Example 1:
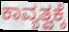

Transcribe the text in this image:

ಕಾವ್ಯತ್ವಕ್ಕೆ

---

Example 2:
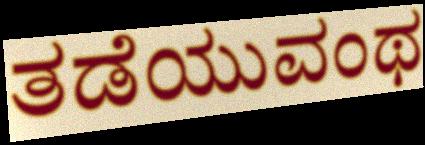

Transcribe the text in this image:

ತಡೆಯುವಂಥ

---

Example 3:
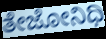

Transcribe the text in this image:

ತೇಜೋನಿಧಿ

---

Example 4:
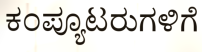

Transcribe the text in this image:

ಕಂಪ್ಯೂಟರುಗಳಿಗೆ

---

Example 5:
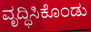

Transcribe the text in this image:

ವೃದ್ಧಿಸಿಕೊಂಡು